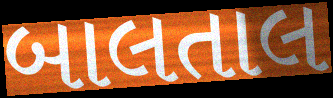
બાલતાલ